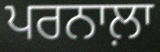
ਪਰਨਾਲ਼ਾ